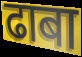
ढाबा